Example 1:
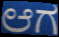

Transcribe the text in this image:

ಆಗ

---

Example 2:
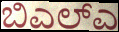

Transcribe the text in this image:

ಬಿಎಲ್ಎ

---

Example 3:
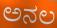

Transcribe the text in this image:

ಅನಲ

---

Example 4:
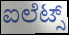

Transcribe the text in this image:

ಐಲೆಟ್ಸ್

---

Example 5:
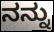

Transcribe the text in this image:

ನನ್ನು